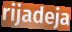
rijadeja